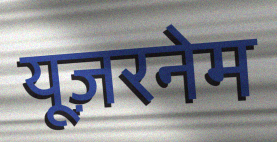
यूज़रनेम